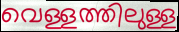
വെള്ളത്തിലുള്ള